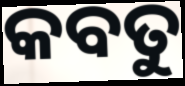
କବତୁ